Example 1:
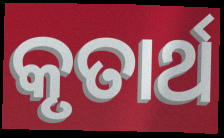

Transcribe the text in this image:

କୃତାର୍ଥ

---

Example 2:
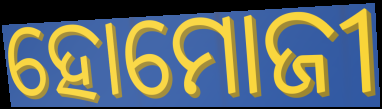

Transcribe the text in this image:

ହୋମୋଜୀ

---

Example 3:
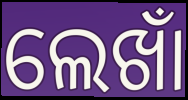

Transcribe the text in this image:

ଲେଖାଁ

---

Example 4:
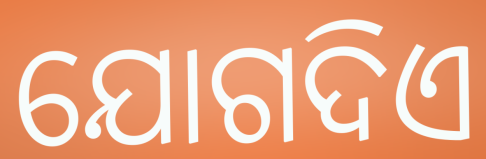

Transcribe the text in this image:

ଯୋଗଦିଏ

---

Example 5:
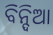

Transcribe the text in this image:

ବିନ୍ଦିଆ